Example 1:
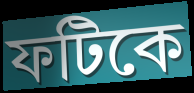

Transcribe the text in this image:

ফটিকে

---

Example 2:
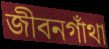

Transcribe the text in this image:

জীবনগাঁথা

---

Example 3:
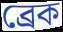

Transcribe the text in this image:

ব্রেক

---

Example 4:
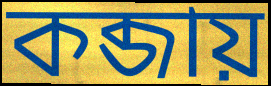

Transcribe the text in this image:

কব্জায়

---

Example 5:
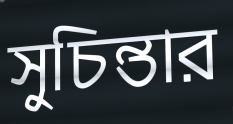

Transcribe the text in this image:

সুচিন্তার